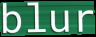
blur